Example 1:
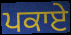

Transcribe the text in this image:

ਪਕਾਏ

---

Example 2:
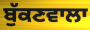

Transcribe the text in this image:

ਬੁੱਕਣਵਾਲਾ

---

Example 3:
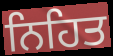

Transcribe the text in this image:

ਨਿਹਿਤ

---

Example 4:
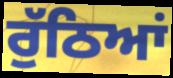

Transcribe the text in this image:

ਰੁੱਠਿਆਂ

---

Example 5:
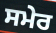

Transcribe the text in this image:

ਸਮੇਰ